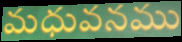
మధువనము